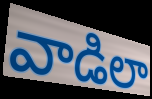
వాడిలా